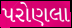
પરોણલા